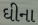
ઘીના